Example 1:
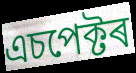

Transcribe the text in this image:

এচপেক্টৰ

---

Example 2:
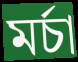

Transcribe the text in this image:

মৰ্চা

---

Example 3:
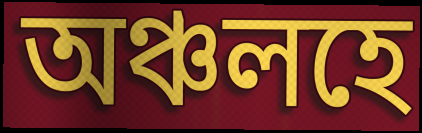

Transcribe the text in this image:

অঞ্চলহে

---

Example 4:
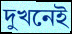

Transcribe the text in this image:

দুখনেই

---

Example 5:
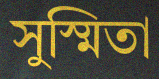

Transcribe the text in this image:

সুস্মিতা